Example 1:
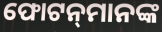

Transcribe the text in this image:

ଫୋଟନ୍‍ମାନଙ୍କ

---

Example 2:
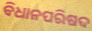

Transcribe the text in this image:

ବିଧାନପରିଷଦ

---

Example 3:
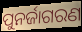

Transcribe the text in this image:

ପୁନର୍ଜାଗରଣ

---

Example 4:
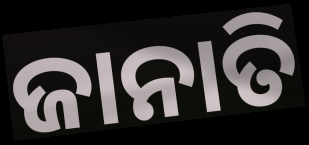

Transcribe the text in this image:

ଜାନାତି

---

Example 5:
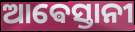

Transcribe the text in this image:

ଆଵେସ୍ତାନୀ